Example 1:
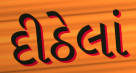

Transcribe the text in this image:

દીઠેલાં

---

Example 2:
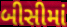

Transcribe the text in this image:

બીસીમાં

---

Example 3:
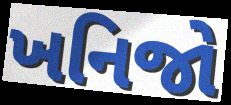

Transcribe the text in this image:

ખનિજો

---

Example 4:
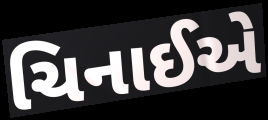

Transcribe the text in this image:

ચિનાઈએ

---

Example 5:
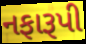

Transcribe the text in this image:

નફારૂપી